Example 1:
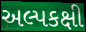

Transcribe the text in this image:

અલ્પકક્ષી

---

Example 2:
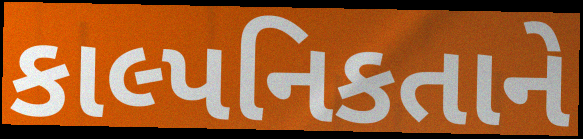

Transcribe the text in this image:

કાલ્પનિકતાને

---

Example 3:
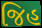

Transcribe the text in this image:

જિહ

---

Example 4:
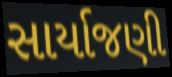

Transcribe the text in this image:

સાર્યાજણી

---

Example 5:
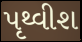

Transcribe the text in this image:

પૃથ્વીશ